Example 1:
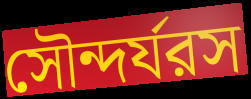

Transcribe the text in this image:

সৌন্দর্যরস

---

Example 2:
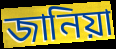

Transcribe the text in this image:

জানিয়া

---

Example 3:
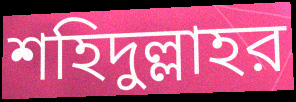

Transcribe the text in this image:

শহিদুল্লাহর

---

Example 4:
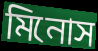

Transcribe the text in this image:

মিনোস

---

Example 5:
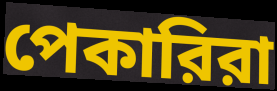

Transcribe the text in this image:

পেকারিরা